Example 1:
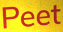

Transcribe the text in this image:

Peet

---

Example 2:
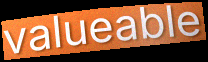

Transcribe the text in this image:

valueable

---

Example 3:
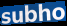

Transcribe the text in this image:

subho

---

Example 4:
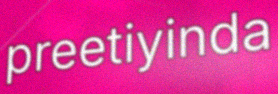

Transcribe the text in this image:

preetiyinda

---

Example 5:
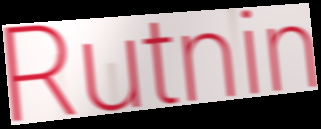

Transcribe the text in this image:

Rutnin